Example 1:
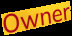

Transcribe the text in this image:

Owner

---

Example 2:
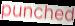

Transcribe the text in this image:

punched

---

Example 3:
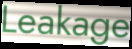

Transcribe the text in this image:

Leakage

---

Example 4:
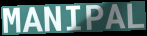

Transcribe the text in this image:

MANIPAL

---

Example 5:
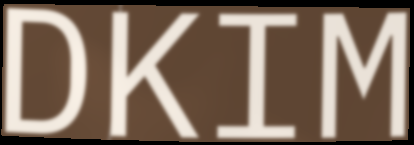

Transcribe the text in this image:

DKIM